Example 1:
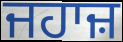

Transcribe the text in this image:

ਜਹਾਜ਼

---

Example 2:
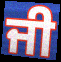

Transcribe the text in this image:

ਜੀ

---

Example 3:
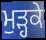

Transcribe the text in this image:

ਮੁੜ੍ਹਕੇ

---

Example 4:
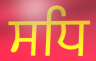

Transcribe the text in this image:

ਸਧਿ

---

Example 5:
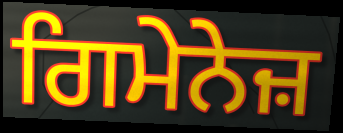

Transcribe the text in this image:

ਗਿਮੇਨੇਜ਼